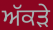
ਅੱਕੜੇ